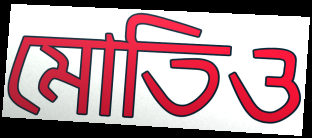
মোতিও